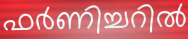
ഫർണിച്ചറിൽ